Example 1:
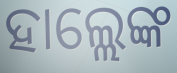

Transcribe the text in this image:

ହାଲ୍ଲେଙ୍କ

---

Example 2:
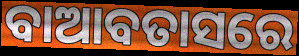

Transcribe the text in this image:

ବାଆବତାସରେ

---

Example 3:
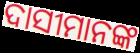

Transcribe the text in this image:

ଦାସୀମାନଙ୍କ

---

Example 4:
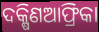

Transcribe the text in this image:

ଦକ୍ଷିଣଆଫ୍ରିକା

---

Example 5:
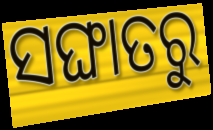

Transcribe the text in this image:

ସଙ୍ଘାତରୁ